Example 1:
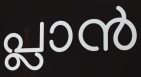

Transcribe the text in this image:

പ്ലാൻ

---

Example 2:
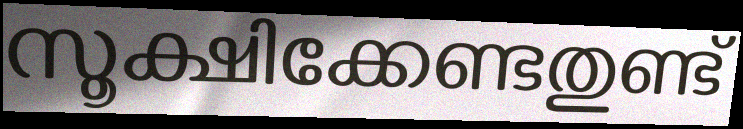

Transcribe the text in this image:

സൂക്ഷിക്കേണ്ടതുണ്ട്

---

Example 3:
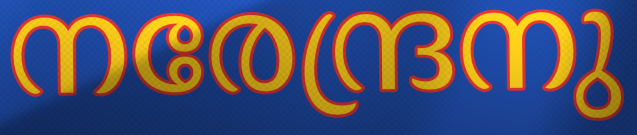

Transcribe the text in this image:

നരേന്ദ്രനു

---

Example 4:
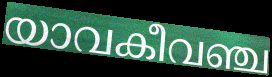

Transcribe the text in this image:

യാവകീവഞ്ച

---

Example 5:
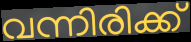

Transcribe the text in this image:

വന്നിരിക്ക്